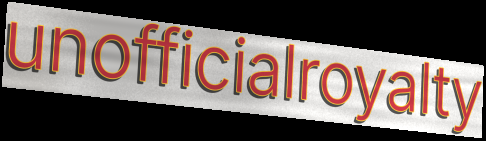
unofficialroyalty